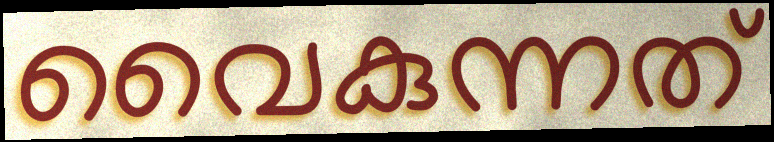
വൈകുന്നത്